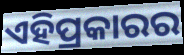
ଏହିପ୍ରକାରର